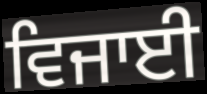
ਵਿਜਾਈ